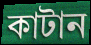
কাটান